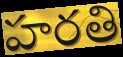
హరతి